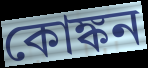
কোঙ্কন